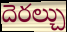
దెరల్చు